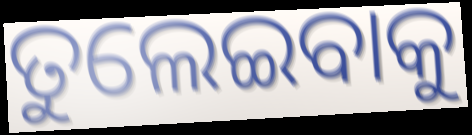
ତୁଲେଇବାକୁ